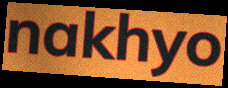
nakhyo